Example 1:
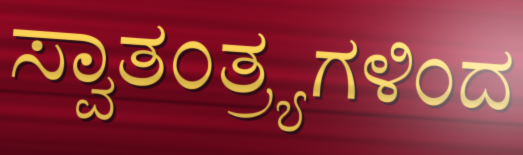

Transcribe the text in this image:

ಸ್ವಾತಂತ್ರ್ಯಗಳಿಂದ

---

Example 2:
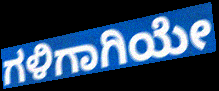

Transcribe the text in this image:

ಗಳಿಗಾಗಿಯೇ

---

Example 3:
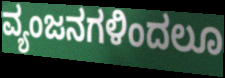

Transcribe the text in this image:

ವ್ಯಂಜನಗಳಿಂದಲೂ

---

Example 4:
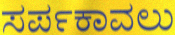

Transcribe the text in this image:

ಸರ್ಪಕಾವಲು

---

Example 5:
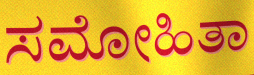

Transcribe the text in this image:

ಸಮೋಹಿತಾ